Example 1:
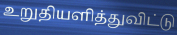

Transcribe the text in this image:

உறுதியளித்துவிட்டு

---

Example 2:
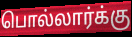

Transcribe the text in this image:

பொல்லார்க்கு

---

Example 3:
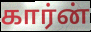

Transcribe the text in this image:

கார்ன்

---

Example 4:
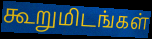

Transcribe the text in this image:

கூறுமிடங்கள்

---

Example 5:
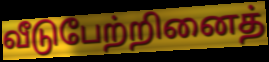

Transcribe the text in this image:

வீடுபேற்றினைத்